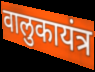
वालुकायंत्र